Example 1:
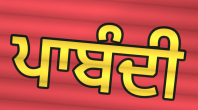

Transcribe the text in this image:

ਪਾਬੰਦੀ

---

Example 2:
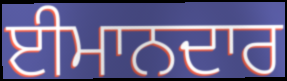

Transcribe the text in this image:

ਈਮਾਨਦਾਰ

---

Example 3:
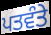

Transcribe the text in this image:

ਪਤਵੰਤੇ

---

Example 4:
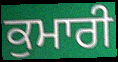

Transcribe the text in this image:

ਕੁਮਾਰੀ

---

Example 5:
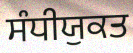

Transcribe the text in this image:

ਸੰਧੀਯੁਕਤ